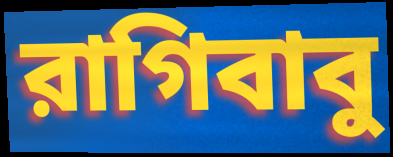
রাগিবাবু